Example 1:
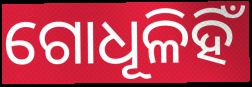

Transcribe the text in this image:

ଗୋଧୂଳିହିଁ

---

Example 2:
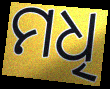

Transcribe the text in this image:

ମଧି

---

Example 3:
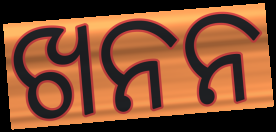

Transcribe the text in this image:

ଖନନ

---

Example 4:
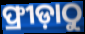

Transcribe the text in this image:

ଫ୍ରୀଡ଼ାଠୁ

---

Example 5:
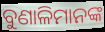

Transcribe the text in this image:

ବୁଣାଳିମାନଙ୍କ